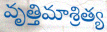
వృత్తిమాశ్రిత్య